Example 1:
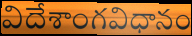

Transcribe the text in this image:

విదేశాంగవిధానం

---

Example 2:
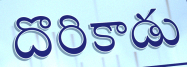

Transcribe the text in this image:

దొరికాడు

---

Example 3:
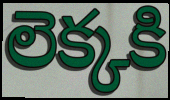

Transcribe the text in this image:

లెక్కకి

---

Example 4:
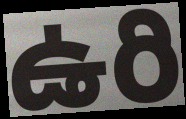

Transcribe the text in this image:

ఉరి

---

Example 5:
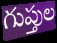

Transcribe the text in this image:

గుప్తుల